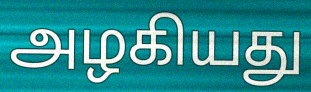
அழகியது